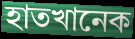
হাতখানেক